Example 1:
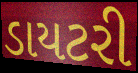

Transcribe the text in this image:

ડાયટરી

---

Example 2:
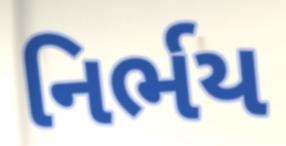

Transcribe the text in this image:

નિર્ભય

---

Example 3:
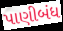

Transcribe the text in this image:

પાણીબંધ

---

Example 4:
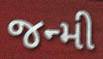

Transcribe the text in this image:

જન્મી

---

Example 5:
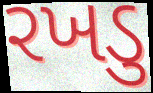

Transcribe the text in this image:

રખડુ